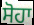
ਸੋਹਾ